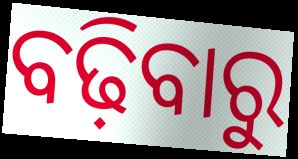
ବଢ଼ିବାରୁ